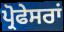
ਪ੍ਰੋਫੇਸਰਾਂ